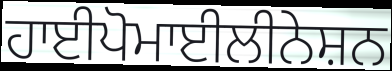
ਹਾਈਪੋਮਾਈਲੀਨੇਸ਼ਨ